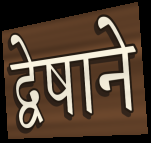
द्वेषाने